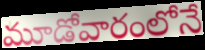
మూడోవారంలోనే